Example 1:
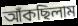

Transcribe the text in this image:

আঁকছিলাম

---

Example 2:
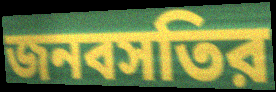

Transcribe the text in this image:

জনবসতির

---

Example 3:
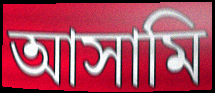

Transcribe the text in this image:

আসামি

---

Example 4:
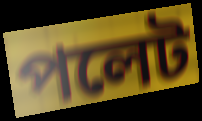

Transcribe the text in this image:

পলেট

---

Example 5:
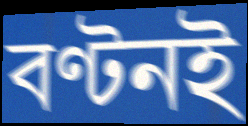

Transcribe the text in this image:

বণ্টনই